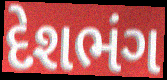
દેશભંગ